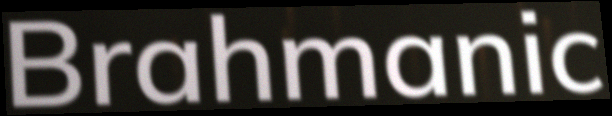
Brahmanic